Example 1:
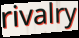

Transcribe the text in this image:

rivalry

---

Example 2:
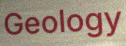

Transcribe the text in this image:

Geology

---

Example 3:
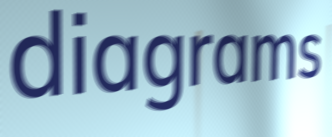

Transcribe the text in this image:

diagrams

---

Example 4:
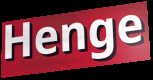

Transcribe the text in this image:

Henge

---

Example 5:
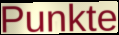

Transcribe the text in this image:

Punkte